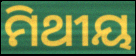
ମିଥୀୟ